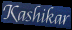
Kashikar